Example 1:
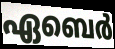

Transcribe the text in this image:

ഏബെർ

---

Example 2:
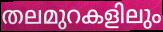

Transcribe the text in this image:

തലമുറകളിലും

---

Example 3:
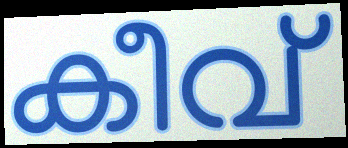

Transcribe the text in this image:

കീവ്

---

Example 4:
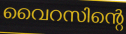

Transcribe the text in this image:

വൈറസിന്റെ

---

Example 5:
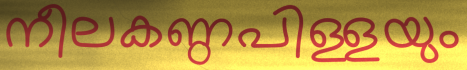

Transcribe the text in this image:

നീലകണ്ഠപിള്ളയും